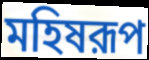
মহিষরূপ